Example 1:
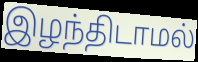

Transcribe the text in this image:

இழந்திடாமல்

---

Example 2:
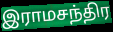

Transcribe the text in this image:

இராமசந்திர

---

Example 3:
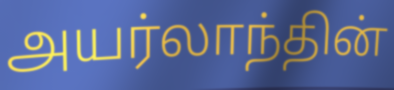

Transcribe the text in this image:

அயர்லாந்தின்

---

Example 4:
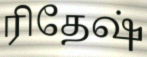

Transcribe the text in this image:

ரிதேஷ்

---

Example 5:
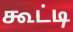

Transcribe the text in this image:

கூட்டி